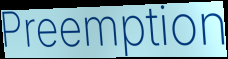
Preemption